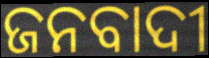
ଜନବାଦୀ